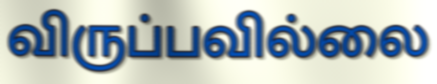
விருப்பவில்லை